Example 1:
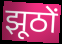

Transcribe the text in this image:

झूठों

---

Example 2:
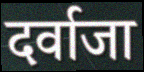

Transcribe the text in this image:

दर्वाजा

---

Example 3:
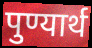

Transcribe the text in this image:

पुण्यार्थ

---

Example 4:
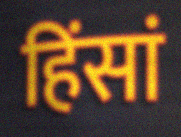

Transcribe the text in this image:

हिंसां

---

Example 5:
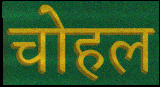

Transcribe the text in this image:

चोहल